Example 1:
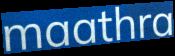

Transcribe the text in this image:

maathra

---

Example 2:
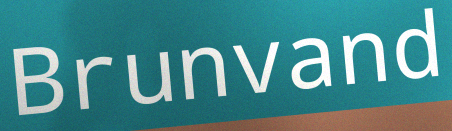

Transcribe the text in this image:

Brunvand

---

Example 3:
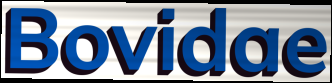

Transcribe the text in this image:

Bovidae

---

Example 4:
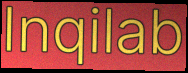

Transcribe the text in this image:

Inqilab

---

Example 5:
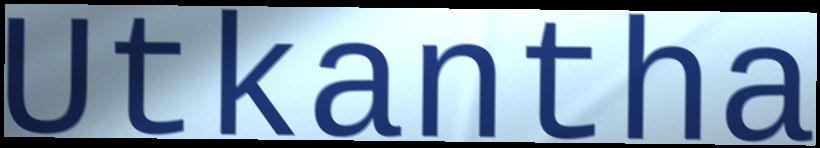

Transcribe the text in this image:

Utkantha